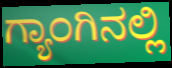
ಗ್ಯಾಂಗಿನಲ್ಲಿ